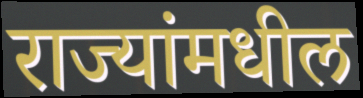
राज्यांमधील